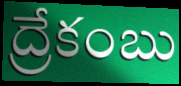
ద్రేకంబు